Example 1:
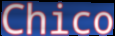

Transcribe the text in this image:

Chico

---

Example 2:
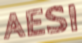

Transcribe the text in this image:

AESI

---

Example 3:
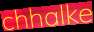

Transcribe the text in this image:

chhalke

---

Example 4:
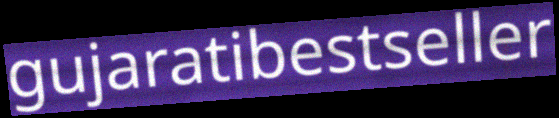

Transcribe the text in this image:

gujaratibestseller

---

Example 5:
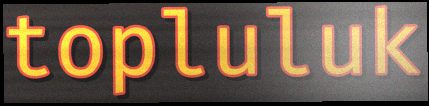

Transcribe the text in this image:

topluluk